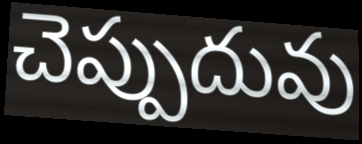
చెప్పుదువు